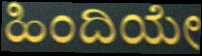
ಹಿಂದಿಯೇ